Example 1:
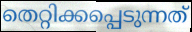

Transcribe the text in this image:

തെറ്റിക്കപ്പെടുന്നത്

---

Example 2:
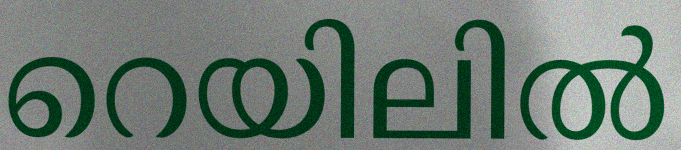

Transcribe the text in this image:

റെയിലിൽ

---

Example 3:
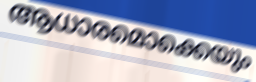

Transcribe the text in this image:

ആധാരമൊക്കെയും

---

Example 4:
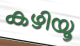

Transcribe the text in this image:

കഴിയൂ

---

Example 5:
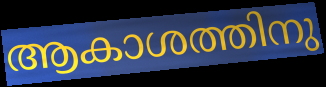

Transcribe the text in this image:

ആകാശത്തിനു